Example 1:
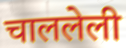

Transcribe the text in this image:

चाललेली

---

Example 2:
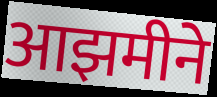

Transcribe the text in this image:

आझमीने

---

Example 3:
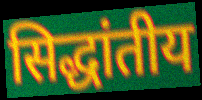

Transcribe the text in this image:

सिद्धांतीय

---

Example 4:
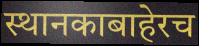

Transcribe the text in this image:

स्थानकाबाहेरच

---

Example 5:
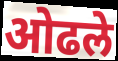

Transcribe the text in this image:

ओढले